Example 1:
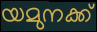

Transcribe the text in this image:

യമുനക്ക്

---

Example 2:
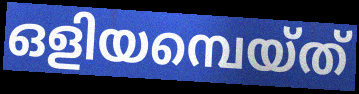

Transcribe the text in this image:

ഒളിയമ്പെയ്ത്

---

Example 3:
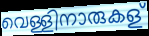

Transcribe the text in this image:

വെള്ളിനാരുകള്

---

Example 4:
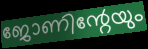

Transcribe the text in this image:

ജോണിന്റേയും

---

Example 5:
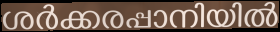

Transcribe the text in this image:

ശർക്കരപ്പാനിയിൽ